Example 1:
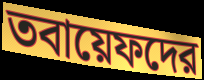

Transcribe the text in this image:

তবায়েফদের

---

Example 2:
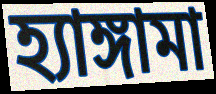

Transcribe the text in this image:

হ্যাঙ্গামা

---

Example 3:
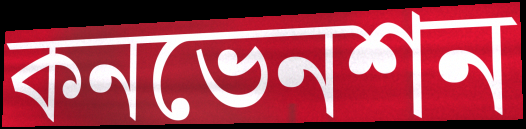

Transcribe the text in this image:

কনভেনশন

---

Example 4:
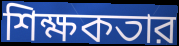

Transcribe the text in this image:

শিক্ষকতার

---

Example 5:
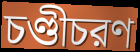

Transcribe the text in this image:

চণ্ডীচরণ